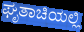
ಘೃತಾಚಿಯಲ್ಲಿ